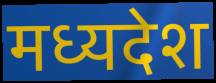
मध्यदेश